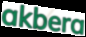
akbera